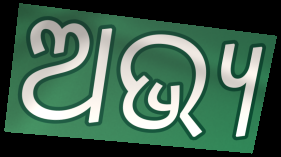
ଅଭ୍ୟ